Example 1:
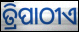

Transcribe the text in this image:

ତ୍ରିପାଠୀଏ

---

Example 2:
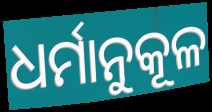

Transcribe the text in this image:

ଧର୍ମାନୁକୂଳ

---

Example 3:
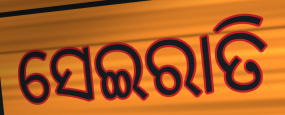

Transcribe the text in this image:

ସେଇରାତି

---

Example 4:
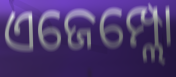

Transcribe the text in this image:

ଏଜେମ୍ପ୍ଲୋ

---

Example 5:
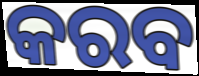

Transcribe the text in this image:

କରବ